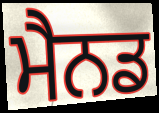
ਮੈਨਡ